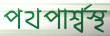
পথপার্শ্বস্থ